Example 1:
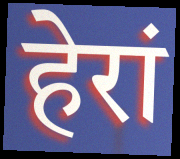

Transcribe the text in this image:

हेरां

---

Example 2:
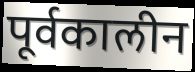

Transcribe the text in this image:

पूर्वकालीन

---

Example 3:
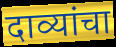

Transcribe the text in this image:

दाव्यांचा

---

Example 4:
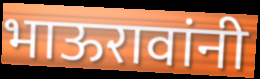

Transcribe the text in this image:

भाऊरावांनी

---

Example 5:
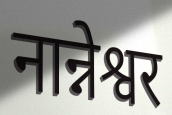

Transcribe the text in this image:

नान्नेश्वर